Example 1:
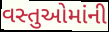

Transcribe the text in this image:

વસ્તુઓમાંની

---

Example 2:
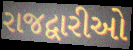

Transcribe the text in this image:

રાજદ્વારીઓ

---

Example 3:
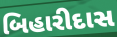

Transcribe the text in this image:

બિહારીદાસ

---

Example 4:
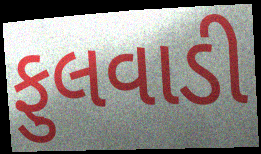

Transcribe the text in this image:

ફુલવાડી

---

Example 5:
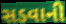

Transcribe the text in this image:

સડવાની